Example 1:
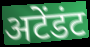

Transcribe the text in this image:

अटेंडंट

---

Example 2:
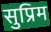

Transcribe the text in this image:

सुप्रिम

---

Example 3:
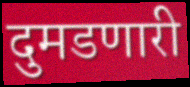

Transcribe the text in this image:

दुमडणारी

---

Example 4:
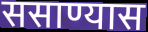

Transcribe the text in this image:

ससाण्यास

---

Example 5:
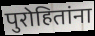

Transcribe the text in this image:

पुरोहितांना